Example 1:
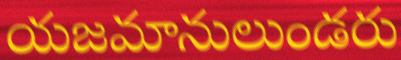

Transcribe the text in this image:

యజమానులుండరు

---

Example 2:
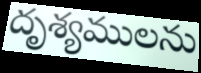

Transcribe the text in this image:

దృశ్యములను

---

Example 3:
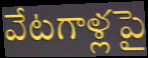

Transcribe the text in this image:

వేటగాళ్లపై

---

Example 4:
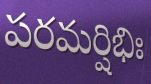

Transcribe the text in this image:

పరమర్షిభిః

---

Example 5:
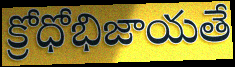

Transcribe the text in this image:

క్రోధోభిజాయతే